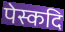
पेस्कदि